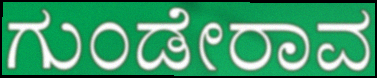
ಗುಂಡೇರಾವ